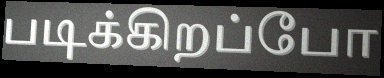
படிக்கிறப்போ